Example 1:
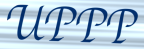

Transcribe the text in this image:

UPPP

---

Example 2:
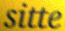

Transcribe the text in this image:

sitte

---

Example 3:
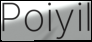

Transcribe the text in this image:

Poiyil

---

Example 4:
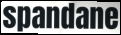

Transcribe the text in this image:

spandane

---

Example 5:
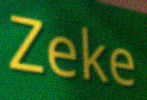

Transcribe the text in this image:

Zeke